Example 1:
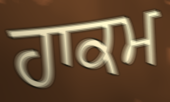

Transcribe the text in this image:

ਹਾਕਮ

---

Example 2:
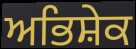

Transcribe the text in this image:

ਅਭਿਸ਼ੇਕ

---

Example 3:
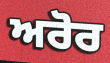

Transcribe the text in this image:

ਅਰੋਰ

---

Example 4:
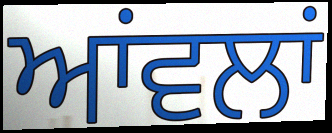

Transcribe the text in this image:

ਆਂਵਲਾਂ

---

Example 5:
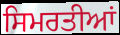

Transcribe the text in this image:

ਸਿਮਰਤੀਆਂ